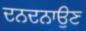
ਦਨਦਨਾਉਣ